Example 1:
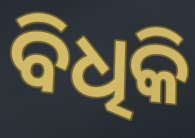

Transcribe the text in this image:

ବିଧିକି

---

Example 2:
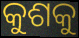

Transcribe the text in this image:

କୁଶକୁ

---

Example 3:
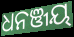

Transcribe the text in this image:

ଧନଞ୍ଜୟ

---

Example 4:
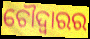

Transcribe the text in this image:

ଚୌଦ୍ୱାରର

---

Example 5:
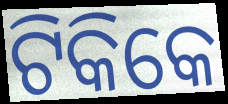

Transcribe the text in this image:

ଟିକିକେ